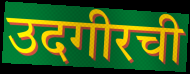
उदगीरची